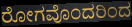
ರೋಗವೊಂದರಿಂದ